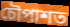
চৌপাশত